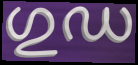
ഗുഡ